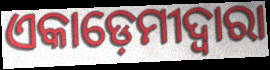
ଏକାଡ଼େମୀଦ୍ୱାରା